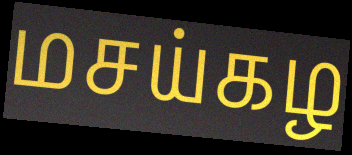
மசய்கழ